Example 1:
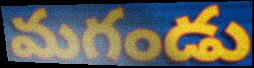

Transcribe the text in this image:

మగండు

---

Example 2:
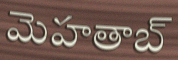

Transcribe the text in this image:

మెహతాబ్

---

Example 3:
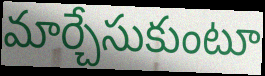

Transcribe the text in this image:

మార్చేసుకుంటూ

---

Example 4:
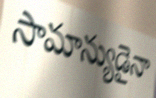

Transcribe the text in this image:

సామాన్యుడైనా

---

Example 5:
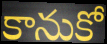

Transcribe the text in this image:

కానుకో